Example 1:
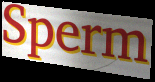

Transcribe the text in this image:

Sperm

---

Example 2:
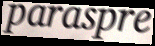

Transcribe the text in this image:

paraspre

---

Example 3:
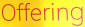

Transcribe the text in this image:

Offering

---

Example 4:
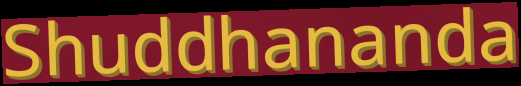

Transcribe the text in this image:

Shuddhananda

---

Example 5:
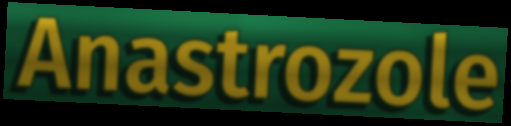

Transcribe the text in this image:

Anastrozole